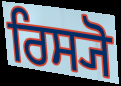
ਰਿਸ੍ਯੋ